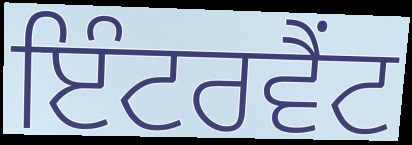
ਇੰਟਰਵੈਂਟ